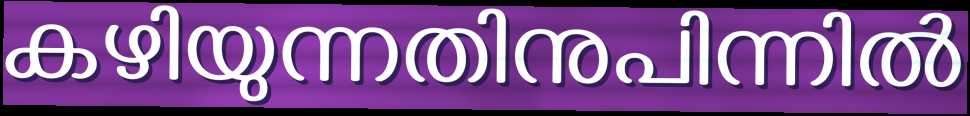
കഴിയുന്നതിനുപിന്നിൽ